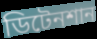
ডিটেনশান